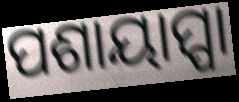
ପଶାୟାପ୍ପା